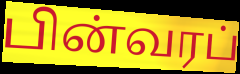
பின்வரப்